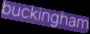
buckingham